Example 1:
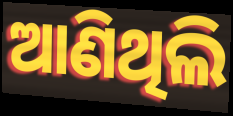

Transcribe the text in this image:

ଆଣିଥିଲି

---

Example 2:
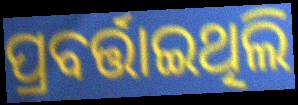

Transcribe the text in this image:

ପ୍ରବର୍ତ୍ତାଇଥିଲି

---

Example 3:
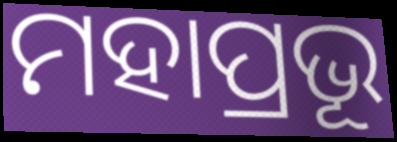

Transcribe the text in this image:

ମହାପ୍ରଭୂ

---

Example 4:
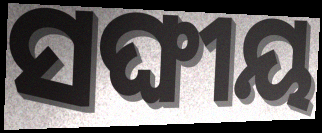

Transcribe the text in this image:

ସଙ୍ଘୀୟ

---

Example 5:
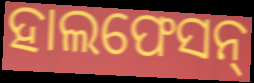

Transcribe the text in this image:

ହାଲଫେସନ୍